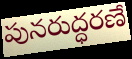
పునరుద్ధరణే